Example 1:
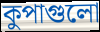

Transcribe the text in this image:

কুপাগুলো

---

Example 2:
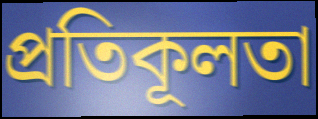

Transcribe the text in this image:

প্রতিকূলতা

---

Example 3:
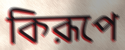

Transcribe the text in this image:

কিরূপে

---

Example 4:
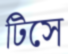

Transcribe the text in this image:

টিসে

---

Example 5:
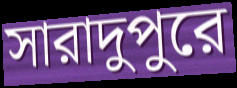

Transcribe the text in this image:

সারাদুপুরে